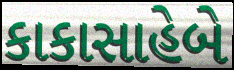
કાકાસાહેબે